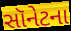
સૉનેટના